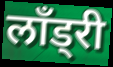
लॉंड्री